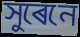
সুৰেনে